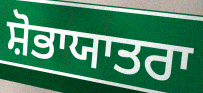
ਸ਼ੋਭਾਯਾਤਰਾ